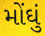
મોંઘું